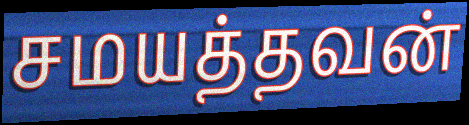
சமயத்தவன்